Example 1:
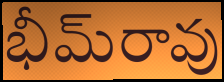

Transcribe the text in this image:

భీమ్‌రావు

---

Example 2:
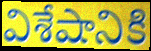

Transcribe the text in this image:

విశేషానికి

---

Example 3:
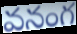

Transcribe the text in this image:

వనంగ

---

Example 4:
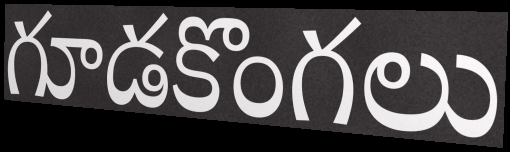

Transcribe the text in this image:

గూడకొంగలు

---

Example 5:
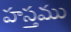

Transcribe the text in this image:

హస్తము